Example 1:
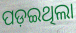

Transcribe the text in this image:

ପଡ଼ଇଥିଲା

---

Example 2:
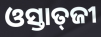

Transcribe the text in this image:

ଓସ୍ତାତ୍‌ଜୀ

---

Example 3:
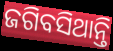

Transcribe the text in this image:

ଜଗିବସିଥାନ୍ତି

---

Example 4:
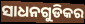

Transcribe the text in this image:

ସାଧନଗୁଡିକର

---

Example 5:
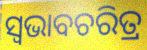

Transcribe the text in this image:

ସ୍ବଭାବଚରିତ୍ର